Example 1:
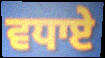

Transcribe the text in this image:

ਵਧਾਏ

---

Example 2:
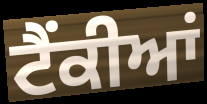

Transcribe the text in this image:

ਟੈਂਕੀਆਂ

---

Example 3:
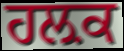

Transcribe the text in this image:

ਹਲ਼ਕ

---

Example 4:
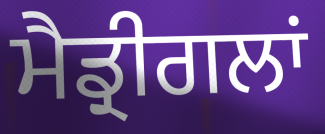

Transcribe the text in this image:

ਮੈਡ੍ਰੀਗਲਾਂ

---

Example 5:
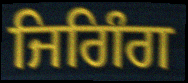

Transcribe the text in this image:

ਜਿਗਿੰਗ